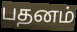
பதனம்